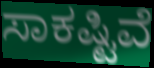
ಸಾಕಷ್ಟಿವೆ